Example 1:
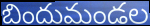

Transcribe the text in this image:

బిందుమండల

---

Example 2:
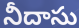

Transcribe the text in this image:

నీదాసు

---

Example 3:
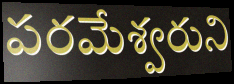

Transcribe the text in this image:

పరమేశ్వరుని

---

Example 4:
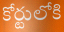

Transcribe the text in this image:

కోర్టులోకి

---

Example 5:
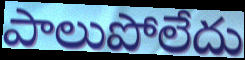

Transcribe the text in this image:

పాలుపోలేదు